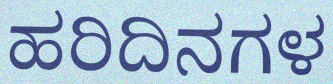
ಹರಿದಿನಗಳ